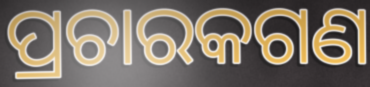
ପ୍ରଚାରକଗଣ